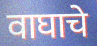
वाघाचे